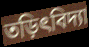
তড়িৎবিদ্যা